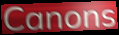
Canons